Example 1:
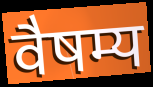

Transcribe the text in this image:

वैषम्य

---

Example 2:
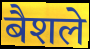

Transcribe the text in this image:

बैशले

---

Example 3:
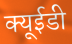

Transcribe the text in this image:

क्यूईडी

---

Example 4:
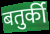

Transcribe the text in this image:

बतुर्की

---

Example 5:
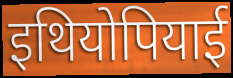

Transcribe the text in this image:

इथियोपियाई